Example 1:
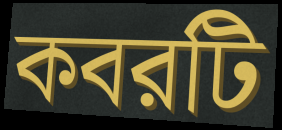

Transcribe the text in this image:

কবরটি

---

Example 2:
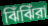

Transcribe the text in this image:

ঝিঁঝিঁরা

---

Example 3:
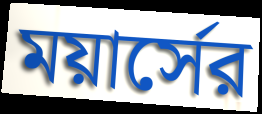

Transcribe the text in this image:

ময়ার্সের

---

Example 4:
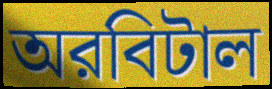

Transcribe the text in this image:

অরবিটাল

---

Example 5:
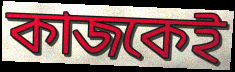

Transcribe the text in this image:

কাজকেই